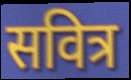
सवित्र